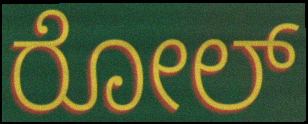
ರೋಲ್